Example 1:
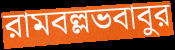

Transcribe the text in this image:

রামবল্লভবাবুর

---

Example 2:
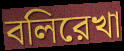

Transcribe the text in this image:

বলিরেখা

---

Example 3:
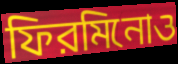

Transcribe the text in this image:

ফিরমিনোও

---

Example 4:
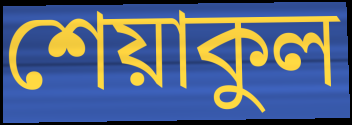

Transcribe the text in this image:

শেয়াকুল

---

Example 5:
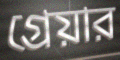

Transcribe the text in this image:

গ্রেয়ার